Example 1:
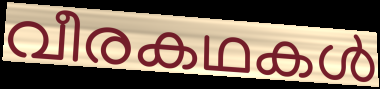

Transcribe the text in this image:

വീരകഥകൾ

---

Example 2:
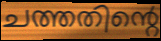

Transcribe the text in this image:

ചത്തതിന്റെ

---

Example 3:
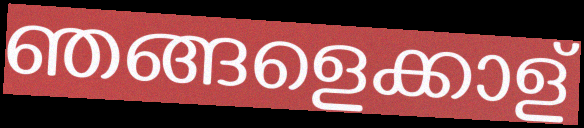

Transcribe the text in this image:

ഞങ്ങളെക്കാള്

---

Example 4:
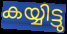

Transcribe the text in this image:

കയ്യിട്ടു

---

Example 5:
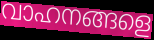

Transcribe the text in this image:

വാഹനങ്ങളെ